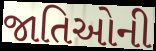
જાતિઓની